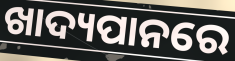
ଖାଦ୍ୟପାନରେ